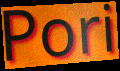
Pori